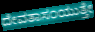
ದೇವತಾಸಂಯುತ್ತೇ